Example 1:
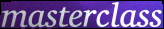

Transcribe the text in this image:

masterclass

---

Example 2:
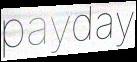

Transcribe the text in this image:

payday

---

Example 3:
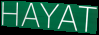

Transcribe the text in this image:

HAYAT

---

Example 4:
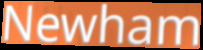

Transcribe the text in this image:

Newham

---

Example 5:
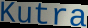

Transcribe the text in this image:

Kutra